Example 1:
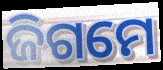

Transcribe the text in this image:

ଜିଗମେ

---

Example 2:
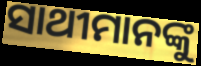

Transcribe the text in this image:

ସାଥୀମାନଙ୍କୁ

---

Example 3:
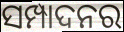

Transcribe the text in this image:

ସମ୍ପାଦନର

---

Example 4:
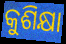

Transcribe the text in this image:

କୁଶିକ୍ଷା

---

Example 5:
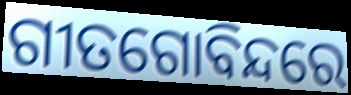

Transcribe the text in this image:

ଗୀତଗୋବିନ୍ଦରେ